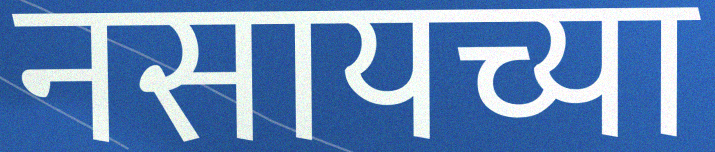
नसायच्या